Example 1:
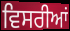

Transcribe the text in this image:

ਵਿਸਰੀਆਂ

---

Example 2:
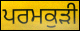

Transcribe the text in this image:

ਪਰਮਕੁੜੀ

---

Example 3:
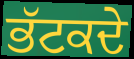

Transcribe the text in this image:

ਭੱਟਕਦੇ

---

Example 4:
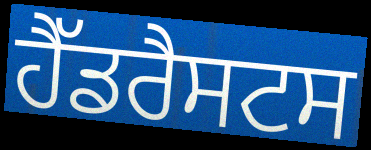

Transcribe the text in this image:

ਹੈੱਡਰੈਸਟਸ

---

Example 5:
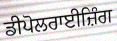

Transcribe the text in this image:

ਡੀਪੋਲਰਾਈਜ਼ਿੰਗ